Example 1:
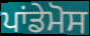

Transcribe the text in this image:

ਪਾਂਡੇਮੋਸ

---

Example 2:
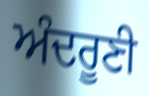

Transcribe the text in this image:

ਅੰਦਰੂਣੀ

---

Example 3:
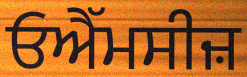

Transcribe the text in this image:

ਓਐੱਮਸੀਜ਼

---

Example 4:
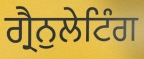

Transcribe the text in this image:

ਗ੍ਰੈਨੁਲੇਟਿੰਗ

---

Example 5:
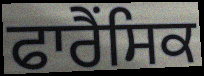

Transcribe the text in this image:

ਫਾਰੈਂਸਿਕ